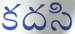
కదసి